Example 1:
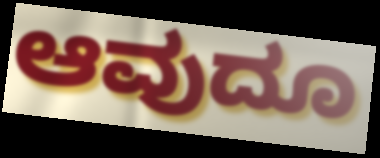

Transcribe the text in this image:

ಆವುದೂ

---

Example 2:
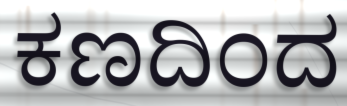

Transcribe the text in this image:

ಕಣದಿಂದ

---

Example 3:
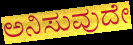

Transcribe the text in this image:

ಅನಿಸುವುದೇ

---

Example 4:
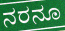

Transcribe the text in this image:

ನರನೂ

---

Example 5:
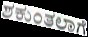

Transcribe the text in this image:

ಶಕುಂತಲಾಗೆ